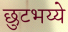
छुटभय्ये